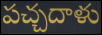
పచ్చదాళు